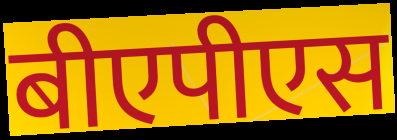
बीएपीएस